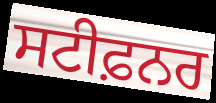
ਸਟੀਫ਼ਨਰ